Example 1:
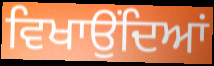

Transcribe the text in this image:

ਵਿਖਾਉਂਦਿਆਂ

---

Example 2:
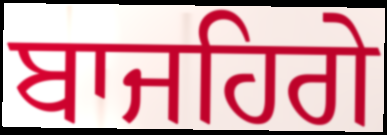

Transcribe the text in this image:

ਬਾਜਹਿਗੇ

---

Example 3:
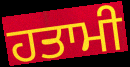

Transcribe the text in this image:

ਹਤਾਮੀ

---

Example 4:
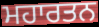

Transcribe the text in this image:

ਮਹਾਰਤਨ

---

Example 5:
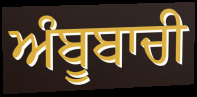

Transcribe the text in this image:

ਅੰਬੂਬਾਚੀ